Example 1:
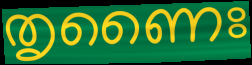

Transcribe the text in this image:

തൃണൈഃ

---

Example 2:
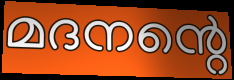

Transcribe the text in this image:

മദനന്റെ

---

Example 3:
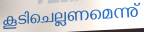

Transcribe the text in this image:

കൂടിചെല്ലണമെന്നു്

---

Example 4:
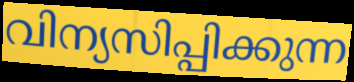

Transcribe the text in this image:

വിന്യസിപ്പിക്കുന്ന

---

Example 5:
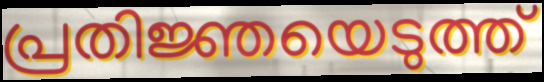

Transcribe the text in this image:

പ്രതിജ്ഞയെടുത്ത്